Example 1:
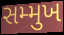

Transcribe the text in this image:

સમ્મુખ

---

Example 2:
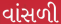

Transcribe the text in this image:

વાંસળી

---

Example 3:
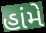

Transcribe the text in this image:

હાંમે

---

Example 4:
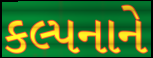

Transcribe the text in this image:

કલ્પનાને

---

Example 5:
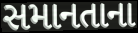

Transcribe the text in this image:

સમાનતાના